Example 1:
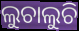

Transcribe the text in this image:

ଲୁଚାଲୁଚି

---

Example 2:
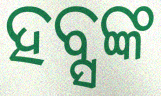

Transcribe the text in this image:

ହବ୍ସଙ୍କ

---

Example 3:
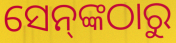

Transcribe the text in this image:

ସେନ୍‌ଙ୍କଠାରୁ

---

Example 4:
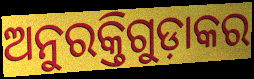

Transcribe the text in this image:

ଅନୁରକ୍ତିଗୁଡ଼ାକର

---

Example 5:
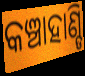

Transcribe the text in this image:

କଞ୍ଚାହାଣ୍ଡି